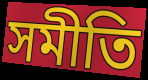
সমীতি